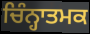
ਚਿੰਨ੍ਹਾਤਮਕ